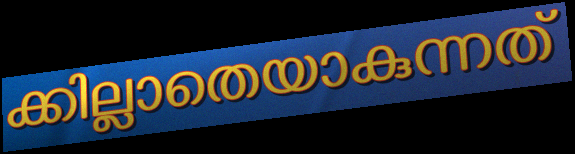
ക്കില്ലാതെയാകുന്നത്